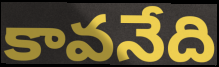
కావనేది